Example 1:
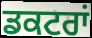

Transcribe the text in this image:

ਡਕਟਰਾਂ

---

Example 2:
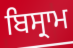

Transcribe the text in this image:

ਬਿਸ੍ਰਾਮ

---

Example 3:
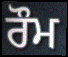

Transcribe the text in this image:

ਰੌਮ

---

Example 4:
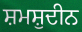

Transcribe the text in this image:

ਸ਼ਮਸ਼ੁਦੀਨ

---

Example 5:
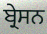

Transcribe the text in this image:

ਬ੍ਰੇਸਨ